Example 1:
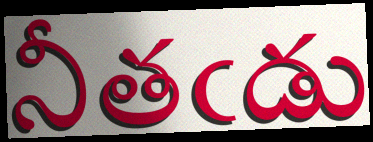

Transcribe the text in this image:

నీతఁడు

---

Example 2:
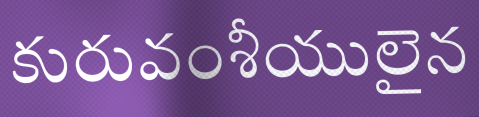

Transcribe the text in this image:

కురువంశీయులైన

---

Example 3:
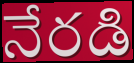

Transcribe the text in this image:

నేరడి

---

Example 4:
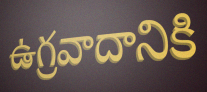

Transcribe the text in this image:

ఉగ్రవాదానికి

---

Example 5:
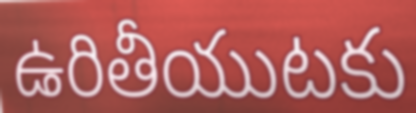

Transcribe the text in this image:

ఉరితీయుటకు